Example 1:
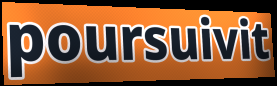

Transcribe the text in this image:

poursuivit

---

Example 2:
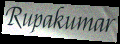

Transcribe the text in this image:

Rupakumar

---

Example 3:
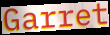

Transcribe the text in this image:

Garret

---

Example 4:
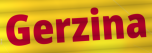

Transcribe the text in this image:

Gerzina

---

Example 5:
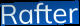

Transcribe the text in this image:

Rafter